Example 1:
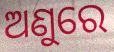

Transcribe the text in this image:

ଅଣୁରେ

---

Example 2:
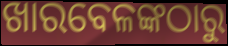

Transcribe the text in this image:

ଖାରବେଳଙ୍କଠାରୁ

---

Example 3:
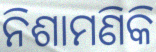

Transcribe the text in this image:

ନିଶାମଣିକି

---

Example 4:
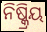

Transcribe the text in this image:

ନିଷ୍କ୍ରିୟ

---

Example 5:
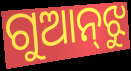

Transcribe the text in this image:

ଗୁଆନ୍‌ଝୁ